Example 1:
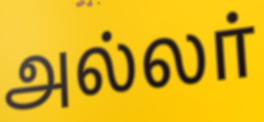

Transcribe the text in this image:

அல்லர்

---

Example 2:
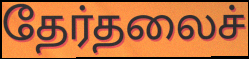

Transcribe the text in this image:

தேர்தலைச்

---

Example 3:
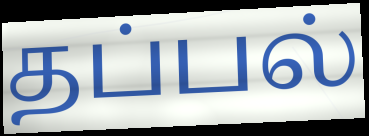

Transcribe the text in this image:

தப்பல்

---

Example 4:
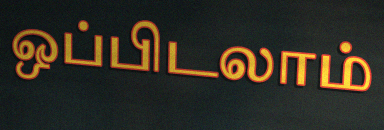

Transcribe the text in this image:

ஒப்பிடலாம்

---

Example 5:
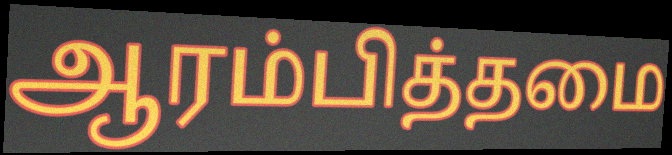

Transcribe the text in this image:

ஆரம்பித்தமை